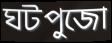
ঘটপুজো